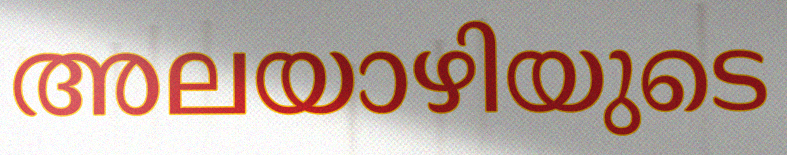
അലയാഴിയുടെ